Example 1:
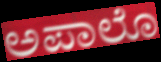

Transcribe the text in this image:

ಅಪಾಲೊ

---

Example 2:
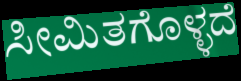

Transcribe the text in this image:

ಸೀಮಿತಗೊಳ್ಳದೆ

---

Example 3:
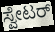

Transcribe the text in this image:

ಸ್ವೇಟರ್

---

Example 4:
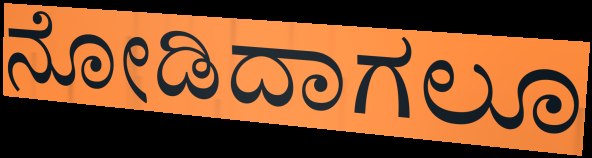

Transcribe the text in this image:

ನೋಡಿದಾಗಲೂ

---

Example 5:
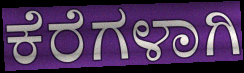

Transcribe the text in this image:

ಕೆರೆಗಳಾಗಿ